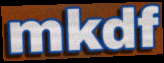
mkdf